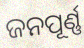
ଜନପୂର୍ଣ୍ଣ